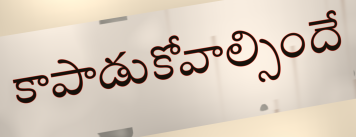
కాపాడుకోవాల్సిందే